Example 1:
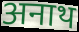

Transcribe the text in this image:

अनाथ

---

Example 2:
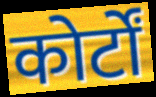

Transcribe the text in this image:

कोर्टों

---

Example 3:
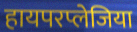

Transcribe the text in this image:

हायपरप्लेजिया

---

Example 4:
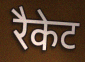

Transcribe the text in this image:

रैकेट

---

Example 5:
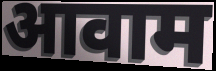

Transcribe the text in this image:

आवाम